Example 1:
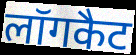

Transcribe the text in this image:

लॉगकैट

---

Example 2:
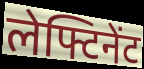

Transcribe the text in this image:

लेफ्टिनेंट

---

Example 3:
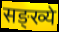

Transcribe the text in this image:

सङ्ख्ये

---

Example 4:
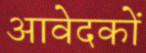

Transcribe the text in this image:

आवेदकों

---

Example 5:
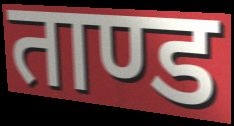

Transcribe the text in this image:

ताण्ड